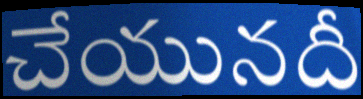
చేయునదీ